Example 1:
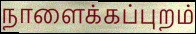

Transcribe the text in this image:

நாளைக்கப்புறம்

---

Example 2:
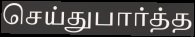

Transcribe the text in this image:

செய்துபார்த்த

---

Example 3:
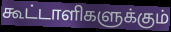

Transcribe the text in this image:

கூட்டாளிகளுக்கும்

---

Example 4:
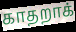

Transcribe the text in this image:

காதறாக்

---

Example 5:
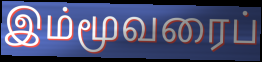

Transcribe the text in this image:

இம்மூவரைப்